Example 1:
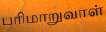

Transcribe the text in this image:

பரிமாறுவாள்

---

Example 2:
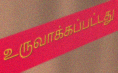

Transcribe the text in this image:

உருவாக்கப்பட்டது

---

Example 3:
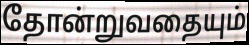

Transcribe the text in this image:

தோன்றுவதையும்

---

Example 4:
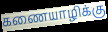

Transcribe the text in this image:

கணையாழிக்கு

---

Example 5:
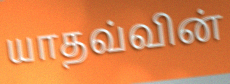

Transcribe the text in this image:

யாதவ்வின்